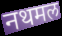
नथमल